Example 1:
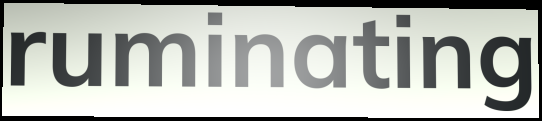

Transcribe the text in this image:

ruminating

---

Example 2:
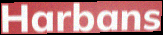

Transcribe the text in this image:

Harbans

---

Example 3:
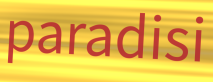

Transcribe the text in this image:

paradisi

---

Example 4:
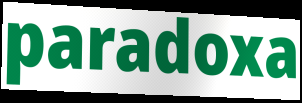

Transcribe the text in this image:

paradoxa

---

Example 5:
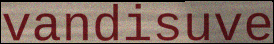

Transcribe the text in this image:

vandisuve